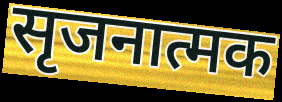
सृजनात्मक